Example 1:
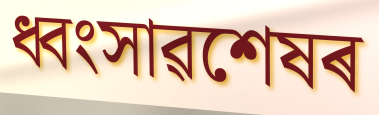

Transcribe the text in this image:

ধ্বংসাৱশেষৰ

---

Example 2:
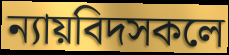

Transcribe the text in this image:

ন্যায়বিদসকলে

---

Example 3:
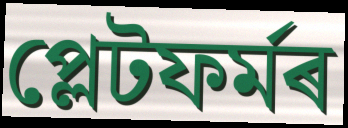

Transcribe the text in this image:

প্লেটফৰ্মৰ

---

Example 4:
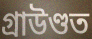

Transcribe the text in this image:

গ্ৰাউণ্ডত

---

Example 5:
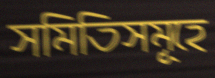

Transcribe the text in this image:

সমিতিসমূহে